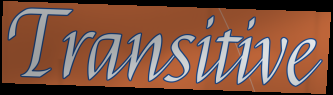
Transitive